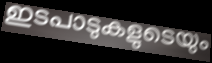
ഇടപാടുകളുടെയും